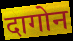
दागोन